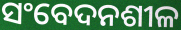
ସଂବେଦନଶୀଳ